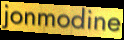
jonmodine